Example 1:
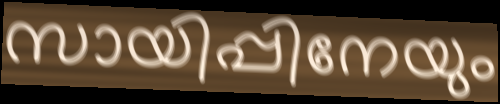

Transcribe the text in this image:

സായിപ്പിനേയും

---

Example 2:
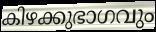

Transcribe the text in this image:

കിഴക്കുഭാഗവും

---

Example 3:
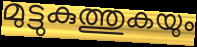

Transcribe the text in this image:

മുട്ടുകുത്തുകയും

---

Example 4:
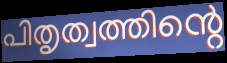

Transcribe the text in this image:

പിതൃത്വത്തിന്റെ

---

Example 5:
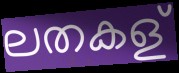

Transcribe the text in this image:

ലതകള്